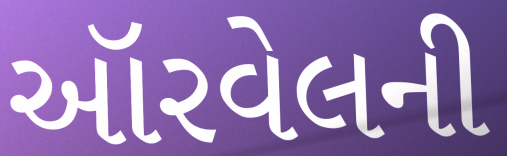
ઑરવેલની